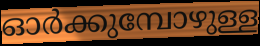
ഓർക്കുമ്പോഴുള്ള